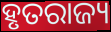
ହୃତରାଜ୍ୟ